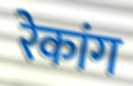
रेकांग